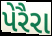
પેરૈરા